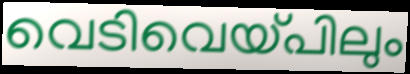
വെടിവെയ്പിലും